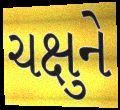
ચક્ષુને